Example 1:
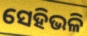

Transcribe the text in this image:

ସେହିଭଳି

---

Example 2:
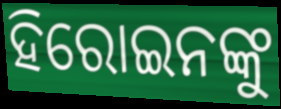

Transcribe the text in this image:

ହିରୋଇନଙ୍କୁ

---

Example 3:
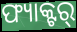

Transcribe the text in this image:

ଫ୍ୟାକ୍ଟର୍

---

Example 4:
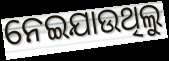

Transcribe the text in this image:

ନେଇଯାଉଥିଲୁ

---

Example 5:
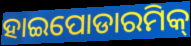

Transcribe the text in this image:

ହାଇପୋଡାରମିକ୍